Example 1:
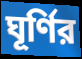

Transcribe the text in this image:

ঘূর্ণির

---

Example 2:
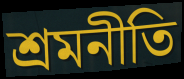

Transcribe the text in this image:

শ্রমনীতি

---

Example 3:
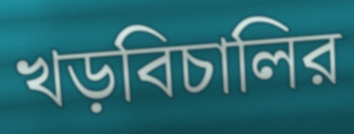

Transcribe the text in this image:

খড়বিচালির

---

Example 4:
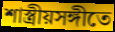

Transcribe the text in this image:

শাস্ত্রীয়সঙ্গীতে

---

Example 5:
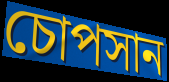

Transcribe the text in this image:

চোপসান